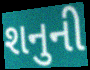
શનુની